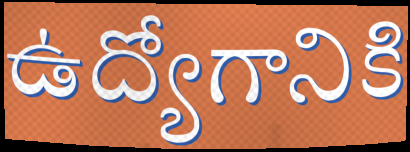
ఉద్యోగానికి